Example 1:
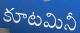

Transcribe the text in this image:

కూటమినీ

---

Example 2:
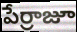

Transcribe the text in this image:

పేర్రాజూ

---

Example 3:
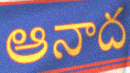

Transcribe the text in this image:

ఆనాద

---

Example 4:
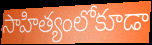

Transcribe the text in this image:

సాహిత్యంలోకూడా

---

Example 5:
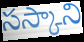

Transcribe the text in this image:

సస్కాని